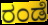
ರಂಡೆ